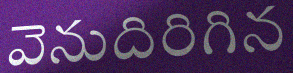
వెనుదిరిగిన